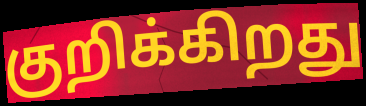
குறிக்கிறது